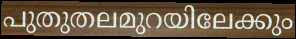
പുതുതലമുറയിലേക്കും